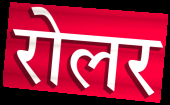
रोलर